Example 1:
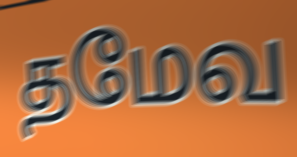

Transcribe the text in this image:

தமேவ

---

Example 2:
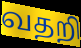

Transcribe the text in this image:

வதறி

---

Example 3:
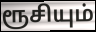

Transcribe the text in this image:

ரூசியும்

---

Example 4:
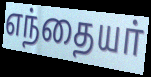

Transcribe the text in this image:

எந்தையர்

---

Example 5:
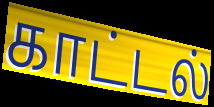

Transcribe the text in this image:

காட்டல்